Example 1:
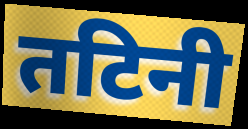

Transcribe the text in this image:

तटिनी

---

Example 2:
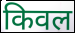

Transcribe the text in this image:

किवल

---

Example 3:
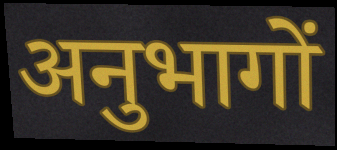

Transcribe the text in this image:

अनुभागों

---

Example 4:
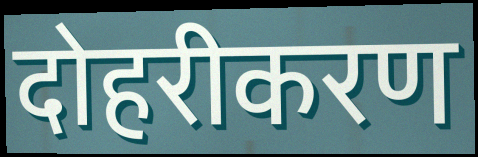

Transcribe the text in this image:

दोहरीकरण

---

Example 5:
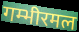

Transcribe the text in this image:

गम्भीरमल